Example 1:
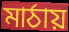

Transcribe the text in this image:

মাঠায়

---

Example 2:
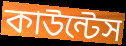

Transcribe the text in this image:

কাউন্টেস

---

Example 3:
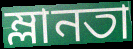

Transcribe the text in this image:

ম্লানতা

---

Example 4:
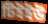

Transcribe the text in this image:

টিইইউ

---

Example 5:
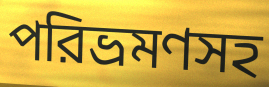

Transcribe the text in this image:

পরিভ্রমণসহ